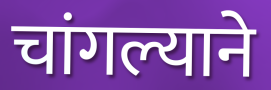
चांगल्याने